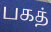
பகத்